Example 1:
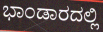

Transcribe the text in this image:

ಭಾಂಡಾರದಲ್ಲಿ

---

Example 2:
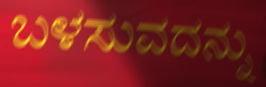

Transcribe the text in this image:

ಬಳಸುವದನ್ನು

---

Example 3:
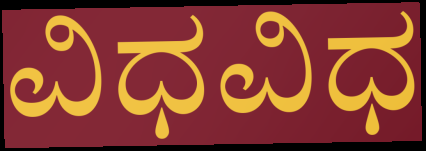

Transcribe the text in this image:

ವಿಧವಿಧ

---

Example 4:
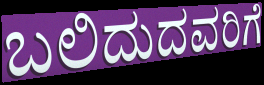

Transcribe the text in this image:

ಬಲಿದುದವರಿಗೆ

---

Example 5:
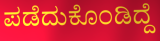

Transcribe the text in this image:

ಪಡೆದುಕೊಂಡಿದ್ದೆ